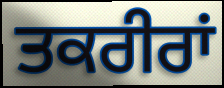
ਤਕਰੀਰਾਂ